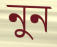
নুন